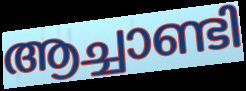
ആച്ചാണ്ടി